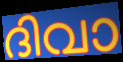
ദിവാ